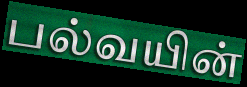
பல்வயின்